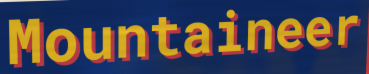
Mountaineer